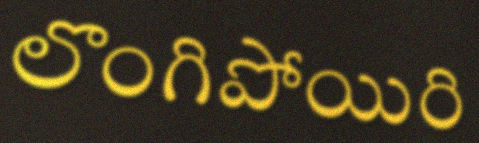
లొంగిపోయిరి